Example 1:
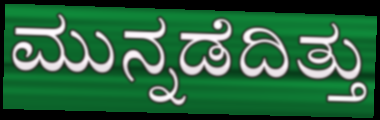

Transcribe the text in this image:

ಮುನ್ನಡೆದಿತ್ತು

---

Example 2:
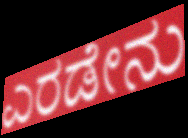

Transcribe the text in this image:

ಎರಡೇನು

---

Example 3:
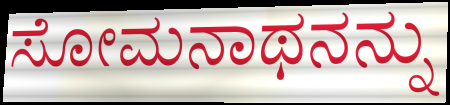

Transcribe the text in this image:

ಸೋಮನಾಥನನ್ನು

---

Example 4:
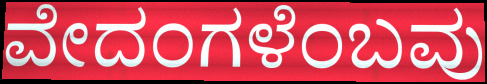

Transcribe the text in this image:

ವೇದಂಗಳೆಂಬವು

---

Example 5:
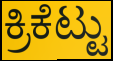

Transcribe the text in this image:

ಕ್ರಿಕೆಟ್ಟು